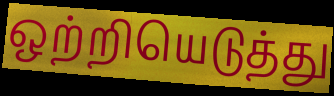
ஒற்றியெடுத்து